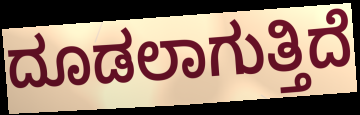
ದೂಡಲಾಗುತ್ತಿದೆ